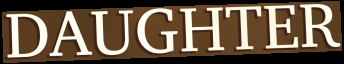
DAUGHTER